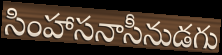
సింహాసనాసీనుడగు